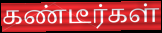
கண்டீர்கள்